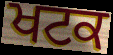
ਖਟਕ